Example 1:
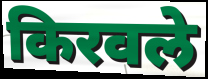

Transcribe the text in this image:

किरवले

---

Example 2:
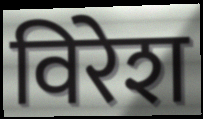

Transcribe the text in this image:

विरेश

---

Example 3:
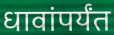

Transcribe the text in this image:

धावांपर्यंत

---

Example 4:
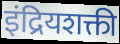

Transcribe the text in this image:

इंद्रियशक्ती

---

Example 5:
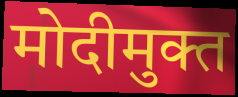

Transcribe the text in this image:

मोदीमुक्त